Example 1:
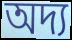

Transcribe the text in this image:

অদ্য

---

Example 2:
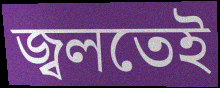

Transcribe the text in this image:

জ্বলতেই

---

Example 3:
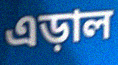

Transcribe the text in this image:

এড়াল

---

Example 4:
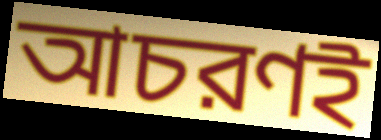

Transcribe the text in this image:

আচরণই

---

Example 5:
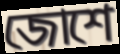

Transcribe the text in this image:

জোশে